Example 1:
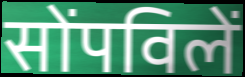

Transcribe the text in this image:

सोंपविलें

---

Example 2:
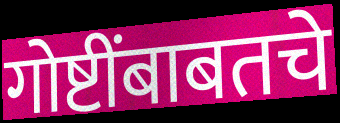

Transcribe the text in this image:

गोष्टींबाबतचे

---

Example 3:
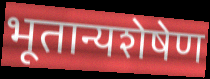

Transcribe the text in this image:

भूतान्यशेषेण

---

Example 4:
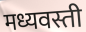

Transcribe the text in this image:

मध्यवस्ती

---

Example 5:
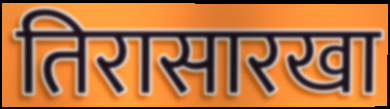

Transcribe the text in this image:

तिरासारखा